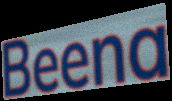
Beena